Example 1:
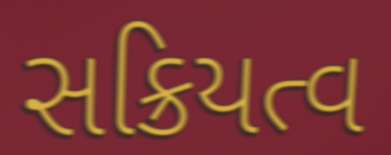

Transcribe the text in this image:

સક્રિયત્વ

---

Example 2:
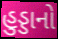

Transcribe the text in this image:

હુડ્ડાનો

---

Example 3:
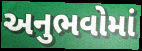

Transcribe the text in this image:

અનુભવોમાં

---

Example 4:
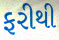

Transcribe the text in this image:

ફરીથી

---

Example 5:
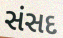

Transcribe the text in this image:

સંસદ